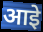
आइे